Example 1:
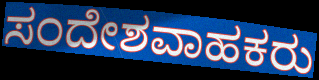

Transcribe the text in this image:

ಸಂದೇಶವಾಹಕರು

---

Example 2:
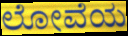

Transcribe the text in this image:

ಲೋವೆಯ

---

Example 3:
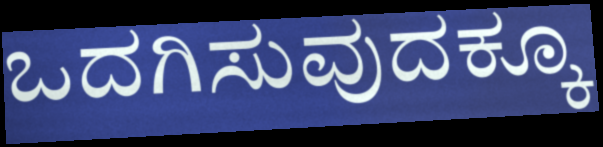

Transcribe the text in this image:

ಒದಗಿಸುವುದಕ್ಕೂ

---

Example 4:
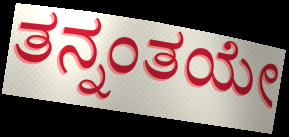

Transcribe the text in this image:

ತನ್ನಂತಯೇ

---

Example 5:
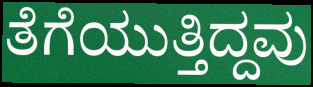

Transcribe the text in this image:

ತೆಗೆಯುತ್ತಿದ್ದವು